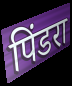
पिंडरा